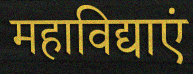
महाविद्याएं